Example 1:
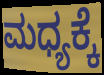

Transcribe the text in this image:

ಮಧ್ಯಕ್ಕೆ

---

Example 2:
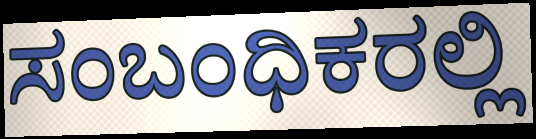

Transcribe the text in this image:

ಸಂಬಂಧಿಕರಲ್ಲಿ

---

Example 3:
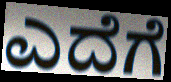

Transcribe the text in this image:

ಎದೆಗೆ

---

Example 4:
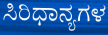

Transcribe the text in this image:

ಸಿರಿಧಾನ್ಯಗಳ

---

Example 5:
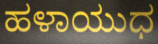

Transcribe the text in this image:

ಹಳಾಯುಧ